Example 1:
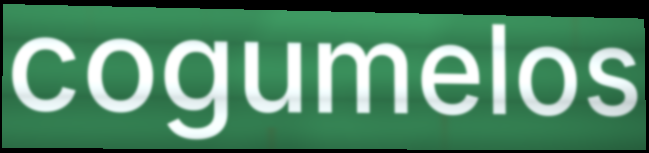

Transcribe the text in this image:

cogumelos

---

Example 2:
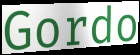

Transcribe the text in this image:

Gordo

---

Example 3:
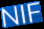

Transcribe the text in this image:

NIF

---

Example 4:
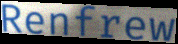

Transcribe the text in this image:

Renfrew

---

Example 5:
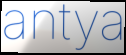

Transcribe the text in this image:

antya